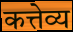
कत्तेव्य